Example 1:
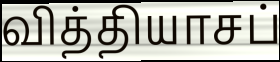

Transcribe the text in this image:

வித்தியாசப்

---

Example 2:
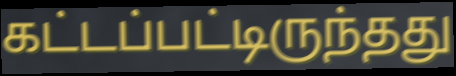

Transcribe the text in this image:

கட்டப்பட்டிருந்தது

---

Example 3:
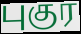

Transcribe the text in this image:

புகுர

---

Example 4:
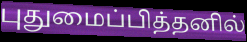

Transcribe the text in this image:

புதுமைப்பித்தனில்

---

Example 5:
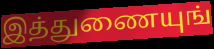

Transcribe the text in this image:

இத்துணையுங்